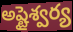
అష్టైశ్వర్య